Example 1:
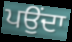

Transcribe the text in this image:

ਪਉਂਦਾ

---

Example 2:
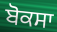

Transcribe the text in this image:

ਬੋਕਸਾ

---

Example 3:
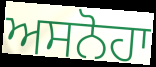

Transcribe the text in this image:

ਅਸਨੋਹਾ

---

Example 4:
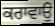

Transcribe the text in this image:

ਕਰਾਵਾਉ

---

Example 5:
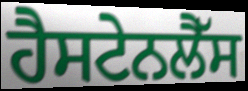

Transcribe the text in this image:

ਹੈਸਟੇਨਲੈੱਸ